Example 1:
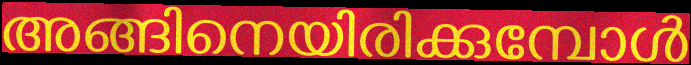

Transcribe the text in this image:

അങ്ങിനെയിരിക്കുമ്പോൾ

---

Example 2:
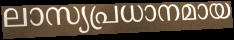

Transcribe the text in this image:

ലാസ്യപ്രധാനമായ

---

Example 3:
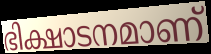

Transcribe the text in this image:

ഭിക്ഷാടനമാണ്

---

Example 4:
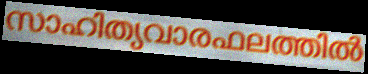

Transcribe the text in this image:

സാഹിത്യവാരഫലത്തിൽ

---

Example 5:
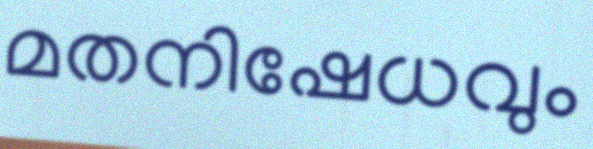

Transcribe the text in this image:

മതനിഷേധവും